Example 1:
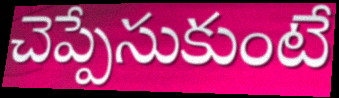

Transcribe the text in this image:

చెప్పేసుకుంటే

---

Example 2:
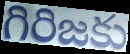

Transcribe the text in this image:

గిరిజకు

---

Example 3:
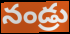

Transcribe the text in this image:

నండ్రు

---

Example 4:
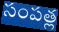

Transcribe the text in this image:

సంపత్ల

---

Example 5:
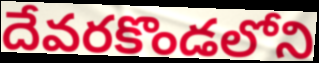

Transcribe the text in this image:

దేవరకొండలోని